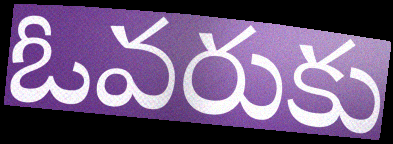
ఓవరుకు